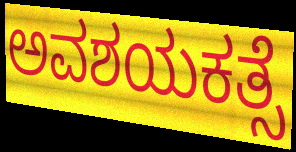
ಅವಶಯಕತ್ಸೆ